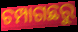
ଚମ୍ପାଗଛରୁ